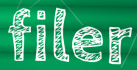
filer